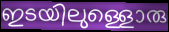
ഇടയിലുള്ളൊരു